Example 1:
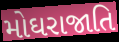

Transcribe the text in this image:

મોઘરાજાતિ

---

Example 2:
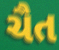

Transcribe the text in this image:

ચૈત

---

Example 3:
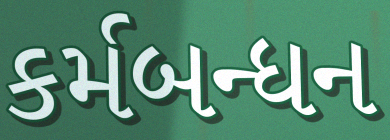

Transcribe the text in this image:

કર્મબન્ધન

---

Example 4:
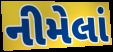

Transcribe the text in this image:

નીમેલાં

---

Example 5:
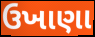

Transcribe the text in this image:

ઉખાણા